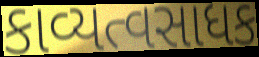
કાવ્યત્વસાધક